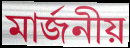
মার্জনীয়